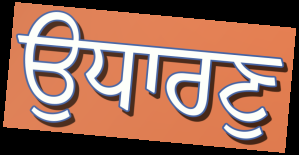
ਉਧਾਰਣੁ